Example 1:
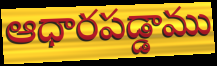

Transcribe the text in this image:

ఆధారపడ్డాము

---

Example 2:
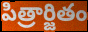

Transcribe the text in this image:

పిత్రార్జితం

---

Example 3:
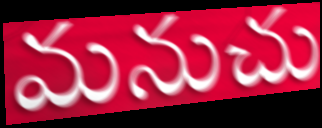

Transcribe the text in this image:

మనుచు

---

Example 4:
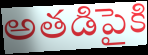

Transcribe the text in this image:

అతడిపైకి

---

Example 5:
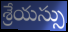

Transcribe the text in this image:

శ్రేయస్సు